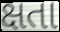
ક્ષતા